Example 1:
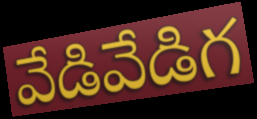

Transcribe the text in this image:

వేడివేడిగ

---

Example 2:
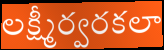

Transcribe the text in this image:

లక్ష్మీర్వరకలా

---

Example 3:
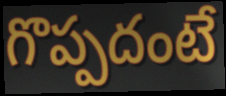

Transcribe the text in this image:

గొప్పదంటే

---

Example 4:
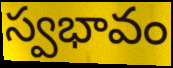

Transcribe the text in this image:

స్వభావం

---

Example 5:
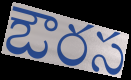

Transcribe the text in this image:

ఔరస